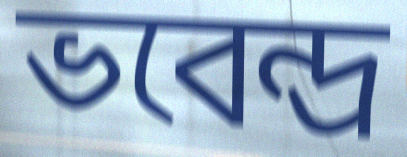
ভবেন্দ্ৰ